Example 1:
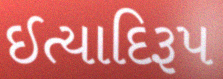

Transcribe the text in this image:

ઈત્યાદિરૂપ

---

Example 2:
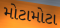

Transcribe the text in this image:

મોટામોટા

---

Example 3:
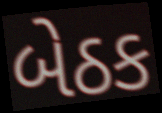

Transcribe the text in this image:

બેઠક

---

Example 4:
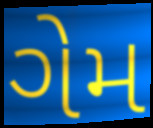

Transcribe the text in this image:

ગેમ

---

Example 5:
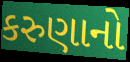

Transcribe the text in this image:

કરુણાનો